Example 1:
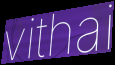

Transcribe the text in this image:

vithai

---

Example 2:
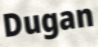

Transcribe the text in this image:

Dugan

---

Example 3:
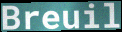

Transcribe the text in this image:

Breuil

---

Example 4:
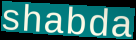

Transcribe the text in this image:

shabda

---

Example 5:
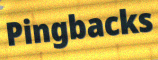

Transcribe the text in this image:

Pingbacks